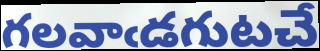
గలవాఁడగుటచే